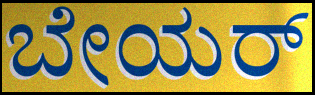
ಬೇಯರ್